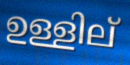
ഉള്ളില്